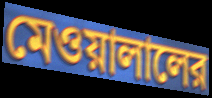
মেওয়ালালের